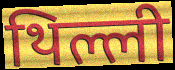
थिल्ली